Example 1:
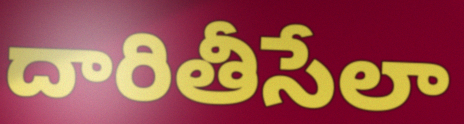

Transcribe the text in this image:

దారితీసేలా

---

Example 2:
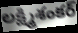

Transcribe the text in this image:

లక్ష్మిశంకర్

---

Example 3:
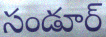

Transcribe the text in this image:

సండూర్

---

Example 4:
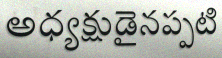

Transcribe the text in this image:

అధ్యక్షుడైనప్పటి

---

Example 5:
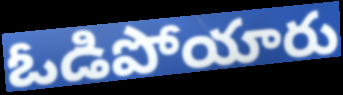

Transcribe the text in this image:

ఓడిపోయారు